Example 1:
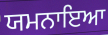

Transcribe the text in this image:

ਯਮਨਾਇਆ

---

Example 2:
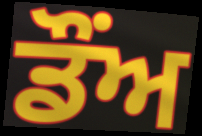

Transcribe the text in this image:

ਡੌਂਅ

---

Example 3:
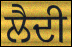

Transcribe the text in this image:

ਲੈਦੀ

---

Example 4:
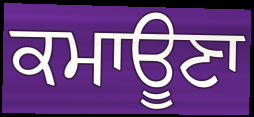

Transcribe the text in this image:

ਕਮਾਊਣਾ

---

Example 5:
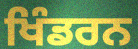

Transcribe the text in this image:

ਖਿੰਡਰਨ